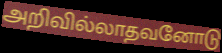
அறிவில்லாதவனோடு